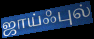
ஜாய்ஃபுல்